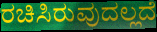
ರಚಿಸಿರುವುದಲ್ಲದೆ